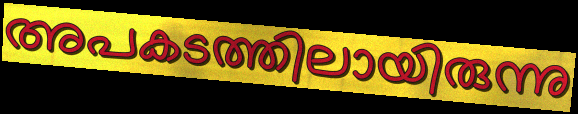
അപകടത്തിലായിരുന്നു